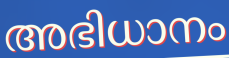
അഭിധാനം